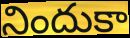
నిందుకా